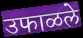
उफाळले